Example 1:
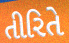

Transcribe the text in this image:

તીરિતે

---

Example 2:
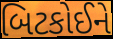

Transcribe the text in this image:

બિટકોઈને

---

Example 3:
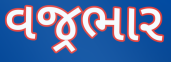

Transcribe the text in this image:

વજ્રભાર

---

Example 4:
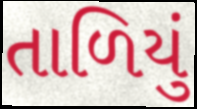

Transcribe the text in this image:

તાળિયું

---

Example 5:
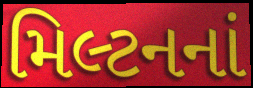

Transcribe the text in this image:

મિલ્ટનનાં